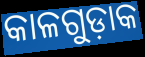
କାଳଗୁଡ଼ାକ